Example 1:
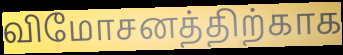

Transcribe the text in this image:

விமோசனத்திற்காக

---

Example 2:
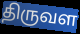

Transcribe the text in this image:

திருவள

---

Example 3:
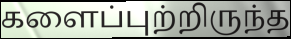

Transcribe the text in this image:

களைப்புற்றிருந்த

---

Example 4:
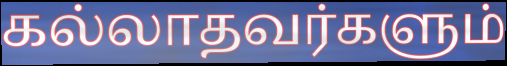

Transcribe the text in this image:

கல்லாதவர்களும்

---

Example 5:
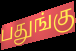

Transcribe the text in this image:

பதுங்கு